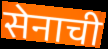
सेनाची